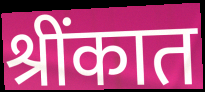
श्रींकात